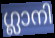
ഗ്ലാനി